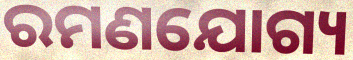
ରମଣଯୋଗ୍ୟ